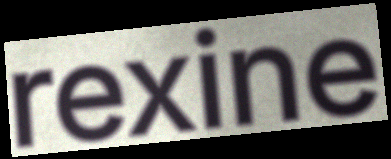
rexine